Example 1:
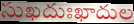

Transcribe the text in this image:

సుఖదుఃఖాదుల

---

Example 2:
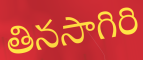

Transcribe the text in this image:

తినసాగిరి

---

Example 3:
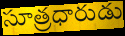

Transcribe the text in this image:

సూత్రధారుడు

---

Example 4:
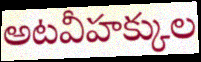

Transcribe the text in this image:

అటవీహక్కుల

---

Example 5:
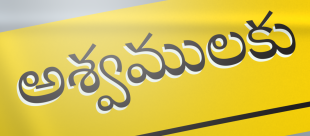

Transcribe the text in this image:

అశ్వములకు